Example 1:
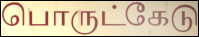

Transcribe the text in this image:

பொருட்கேடு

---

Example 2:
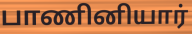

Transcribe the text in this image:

பாணினியார்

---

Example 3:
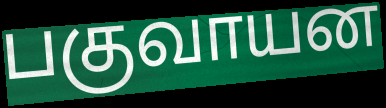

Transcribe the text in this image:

பகுவாயன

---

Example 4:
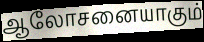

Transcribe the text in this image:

ஆலோசனையாகும்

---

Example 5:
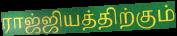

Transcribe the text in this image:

ராஜ்ஜியத்திற்கும்